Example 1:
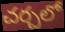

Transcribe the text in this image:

చర్చలో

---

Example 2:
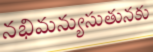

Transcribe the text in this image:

నభిమన్యుసుతునకు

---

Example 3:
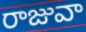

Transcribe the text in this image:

రాజువా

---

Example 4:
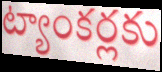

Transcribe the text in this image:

ట్యాంకర్లకు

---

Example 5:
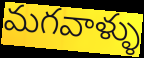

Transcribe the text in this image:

మగవాళ్ళు